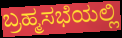
ಬ್ರಹ್ಮಸಭೆಯಲ್ಲಿ